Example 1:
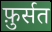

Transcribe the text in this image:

फ़ुर्सत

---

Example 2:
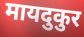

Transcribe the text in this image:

मायदुकुर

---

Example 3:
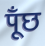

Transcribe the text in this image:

पूँछ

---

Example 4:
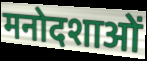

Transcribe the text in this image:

मनोदशाओं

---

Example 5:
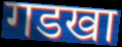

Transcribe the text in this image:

गडखा